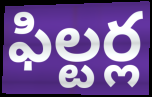
ఫిల్టర్ల